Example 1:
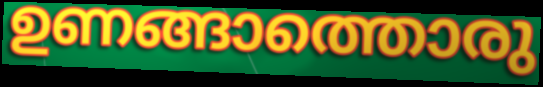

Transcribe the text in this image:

ഉണങ്ങാത്തൊരു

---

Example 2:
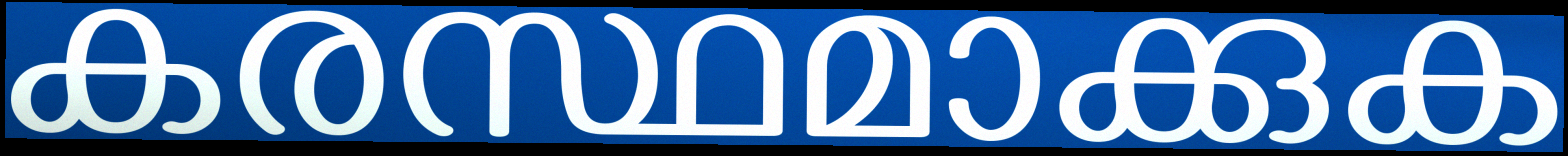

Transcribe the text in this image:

കരസ്ഥമാക്കുക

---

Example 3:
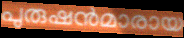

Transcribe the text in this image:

പുരുഷൻമാരായ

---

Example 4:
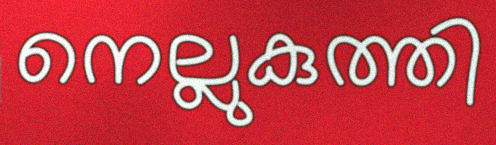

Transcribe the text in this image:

നെല്ലുകുത്തി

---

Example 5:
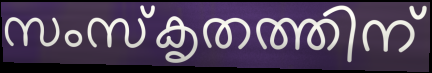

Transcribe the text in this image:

സംസ്കൃതത്തിന്